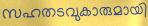
സഹതടവുകാരുമായി